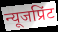
न्यूजप्रिंट